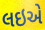
લઇએ